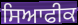
ਸਿਆਫੀਕ